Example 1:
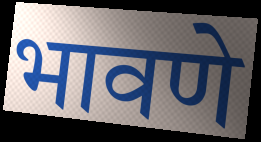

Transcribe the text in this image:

भावणे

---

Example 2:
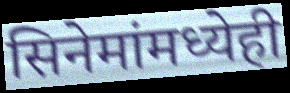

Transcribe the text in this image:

सिनेमांमध्येही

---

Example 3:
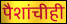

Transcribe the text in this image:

पैशांचीही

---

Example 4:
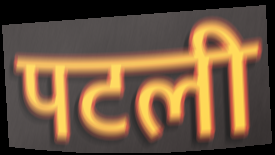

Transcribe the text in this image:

पटली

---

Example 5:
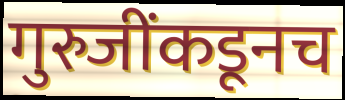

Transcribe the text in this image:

गुरुजींकडूनच